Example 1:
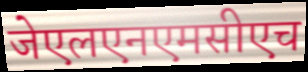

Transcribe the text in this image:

जेएलएनएमसीएच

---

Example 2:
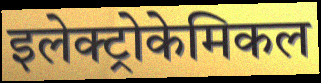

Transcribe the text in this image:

इलेक्ट्रोकेमिकल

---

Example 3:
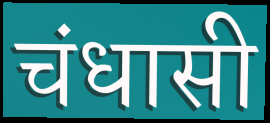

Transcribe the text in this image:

चंधासी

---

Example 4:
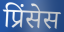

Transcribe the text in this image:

प्रिंसेस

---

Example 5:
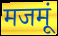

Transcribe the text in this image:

मजमूं